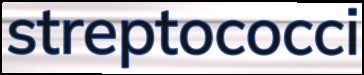
streptococci